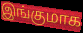
இங்குமாக